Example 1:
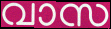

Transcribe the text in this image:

വാസ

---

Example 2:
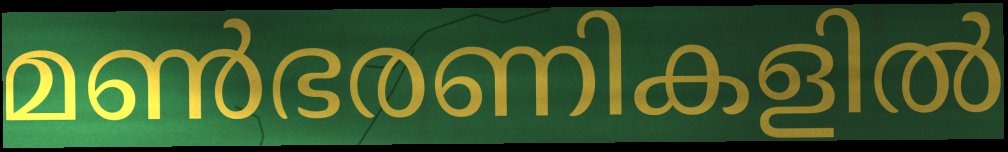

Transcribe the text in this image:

മൺഭരണികളിൽ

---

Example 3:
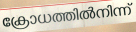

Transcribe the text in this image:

ക്രോധത്തിൽനിന്ന്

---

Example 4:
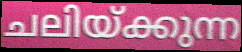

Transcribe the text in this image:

ചലിയ്ക്കുന്ന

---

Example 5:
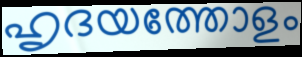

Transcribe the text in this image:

ഹൃദയത്തോളം